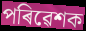
পৰিৱেশক